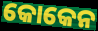
କୋକେନ